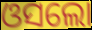
ଓସଲୋ